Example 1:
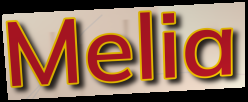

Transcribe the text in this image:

Melia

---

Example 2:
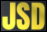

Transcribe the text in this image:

JSD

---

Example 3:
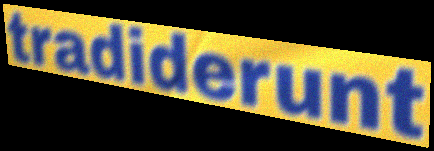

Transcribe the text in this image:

tradiderunt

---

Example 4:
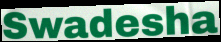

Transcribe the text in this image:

Swadesha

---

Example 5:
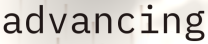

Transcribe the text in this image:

advancing